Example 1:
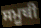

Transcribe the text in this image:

ਸਮੂਥੀ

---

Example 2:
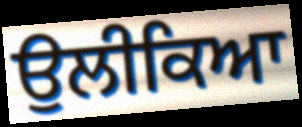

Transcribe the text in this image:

ਉਲੀਕਿਆ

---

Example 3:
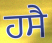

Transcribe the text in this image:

ਹਸੈ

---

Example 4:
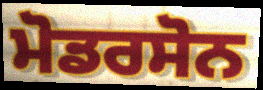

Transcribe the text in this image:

ਮੋਡਰਸੋਨ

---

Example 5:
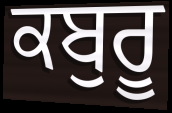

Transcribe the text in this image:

ਕਬੁਰੂ